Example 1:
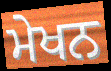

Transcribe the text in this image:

ਮੇਖਨ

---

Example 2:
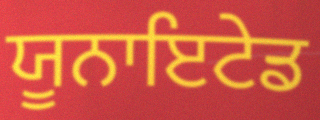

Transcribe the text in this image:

ਯੂਨਾਇਟੇਡ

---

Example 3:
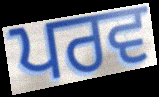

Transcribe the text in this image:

ਪਰਵ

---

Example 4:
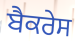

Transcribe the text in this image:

ਬੈਕਰੇਸ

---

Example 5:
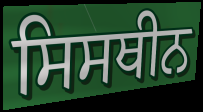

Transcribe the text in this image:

ਸਿਸਥੀਨ